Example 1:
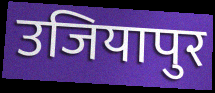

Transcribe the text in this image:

उजियापुर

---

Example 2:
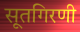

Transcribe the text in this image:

सूतगिरणी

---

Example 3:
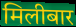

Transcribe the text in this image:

मिलीबार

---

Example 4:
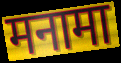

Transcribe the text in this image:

मनामा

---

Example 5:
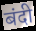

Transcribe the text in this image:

बंदी